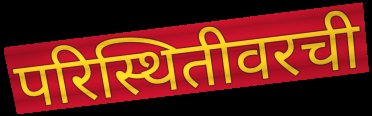
परिस्थितीवरची